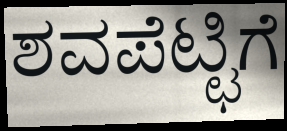
ಶವಪೆಟ್ಟಿಗೆ